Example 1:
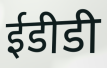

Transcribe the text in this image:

ईडीडी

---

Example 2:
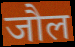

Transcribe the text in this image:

जौल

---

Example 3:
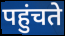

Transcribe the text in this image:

पहुंचते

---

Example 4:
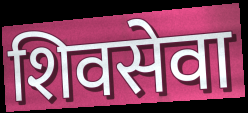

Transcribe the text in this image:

शिवसेवा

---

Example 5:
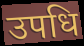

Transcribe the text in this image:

उपधि